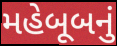
મહેબૂબનું